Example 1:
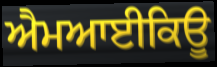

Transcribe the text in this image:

ਐਮਆਈਕਿਊ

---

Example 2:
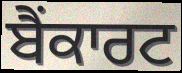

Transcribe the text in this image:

ਬੈਂਕਾਰਟ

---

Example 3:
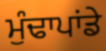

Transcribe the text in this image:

ਮੁੰਢਾਪਾਂਡੇ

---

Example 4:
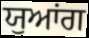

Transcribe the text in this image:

ਯੁਆਂਗ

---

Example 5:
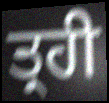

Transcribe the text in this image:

ਤ੍ਰਹੀ